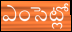
ఎంసెట్లో